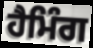
ਹੈਮਿੰਗ